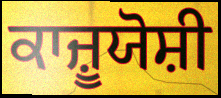
ਕਾਜ਼ੂਯੋਸ਼ੀ